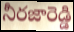
నీరజారెడ్డి